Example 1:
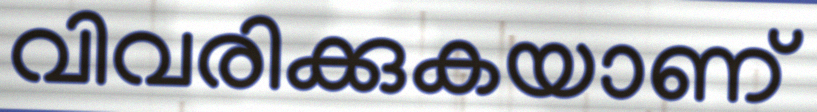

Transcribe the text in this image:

വിവരിക്കുകയാണ്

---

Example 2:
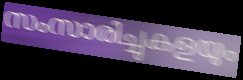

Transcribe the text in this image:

സംസാരിച്ചുകളയും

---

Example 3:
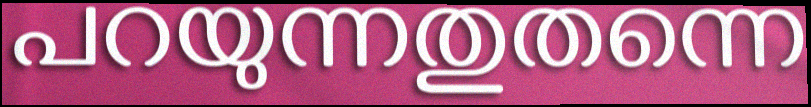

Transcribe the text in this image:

പറയുന്നതുതന്നെ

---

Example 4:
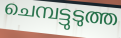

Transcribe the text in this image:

ചെമ്പട്ടുടുത്ത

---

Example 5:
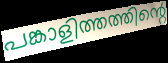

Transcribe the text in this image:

പങ്കാളിത്തത്തിന്റെ